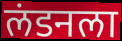
लंडनला